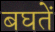
बघतें